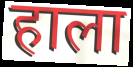
हाला